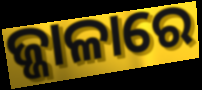
ଜ୍ଜାଳାରେ